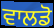
ਵਾਲਡੋ